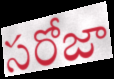
సరోజా